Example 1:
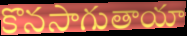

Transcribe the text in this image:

కొనసాగుతాయా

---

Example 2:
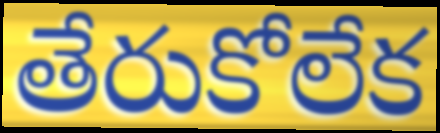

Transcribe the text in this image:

తేరుకోలేక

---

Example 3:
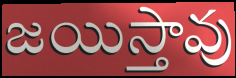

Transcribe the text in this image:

జయిస్తావు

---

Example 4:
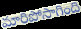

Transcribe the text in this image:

మారిపోసాగింది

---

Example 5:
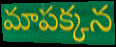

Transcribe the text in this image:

మాపక్కన